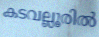
കടവല്ലൂരിൽ